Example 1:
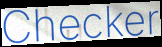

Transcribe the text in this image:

Checker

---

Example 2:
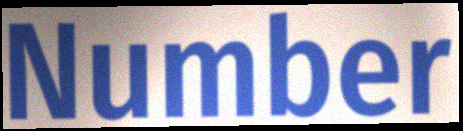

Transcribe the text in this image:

Number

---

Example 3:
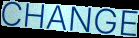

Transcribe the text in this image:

CHANGE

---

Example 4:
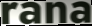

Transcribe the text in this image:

rana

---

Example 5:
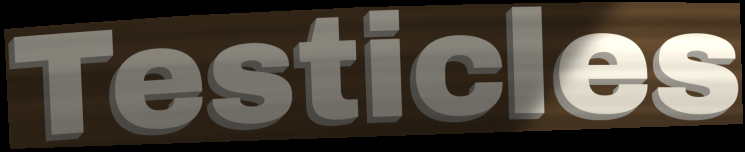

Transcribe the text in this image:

Testicles